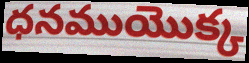
ధనముయొక్క